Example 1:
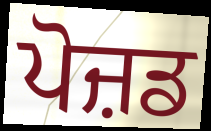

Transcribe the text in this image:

ਪੋਜ਼ਡ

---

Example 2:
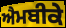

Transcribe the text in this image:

ਐਮਬੀਕੇ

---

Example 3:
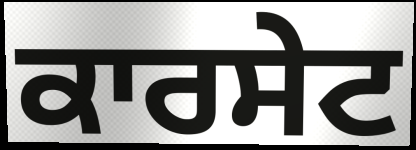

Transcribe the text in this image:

ਕਾਰਸੇਟ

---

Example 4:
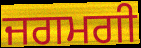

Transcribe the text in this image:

ਜਗਮਗੀ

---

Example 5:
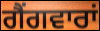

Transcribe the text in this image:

ਗੈਂਗਵਾਰਾਂ